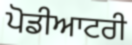
ਪੋਡੀਆਟਰੀ